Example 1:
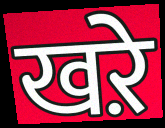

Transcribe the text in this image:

खऱे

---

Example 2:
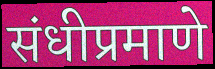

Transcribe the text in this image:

संधीप्रमाणे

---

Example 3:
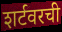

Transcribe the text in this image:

शर्टवरची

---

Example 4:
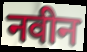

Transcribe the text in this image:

नवीन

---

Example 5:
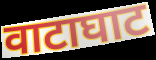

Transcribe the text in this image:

वाटाघाट